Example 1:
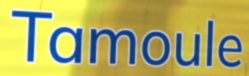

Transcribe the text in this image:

Tamoule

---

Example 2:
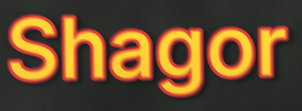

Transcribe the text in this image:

Shagor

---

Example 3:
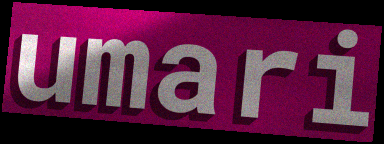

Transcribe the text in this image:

umari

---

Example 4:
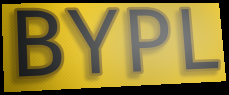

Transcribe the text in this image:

BYPL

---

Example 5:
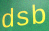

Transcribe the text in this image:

dsb